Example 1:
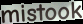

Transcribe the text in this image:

mistook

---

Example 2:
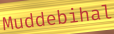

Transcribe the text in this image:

Muddebihal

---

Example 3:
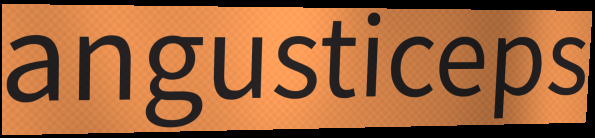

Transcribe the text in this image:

angusticeps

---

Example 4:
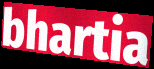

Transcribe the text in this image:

bhartia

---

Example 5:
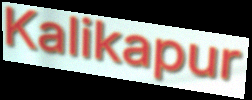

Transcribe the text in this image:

Kalikapur